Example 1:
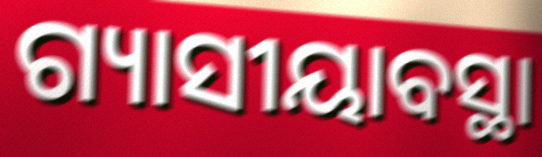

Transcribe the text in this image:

ଗ୍ୟାସୀୟାବସ୍ଥା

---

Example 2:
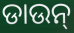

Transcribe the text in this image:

ଡାଉନ୍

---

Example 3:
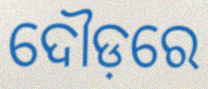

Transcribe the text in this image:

ଦୌଡ଼ରେ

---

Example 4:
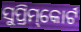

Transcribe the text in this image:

ସୁପ୍ରିମ୍‌କୋର୍ଟ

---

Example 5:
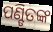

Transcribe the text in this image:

ପଣ୍ଡିତଙ୍କ